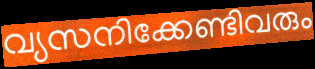
വ്യസനിക്കേണ്ടിവരും